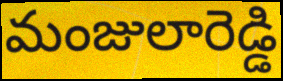
మంజులారెడ్డి